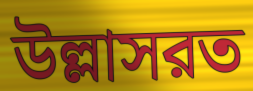
উল্লাসরত